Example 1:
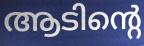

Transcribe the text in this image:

ആടിന്റെ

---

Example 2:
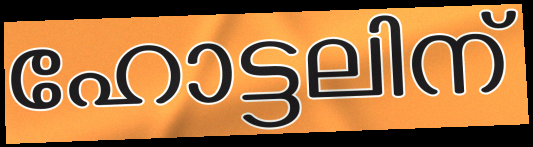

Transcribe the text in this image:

ഹോട്ടലിന്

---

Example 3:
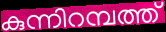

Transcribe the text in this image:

കുന്നിറമ്പത്ത്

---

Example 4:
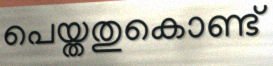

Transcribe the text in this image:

പെയ്തതുകൊണ്ട്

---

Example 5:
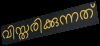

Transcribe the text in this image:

വിസ്തരിക്കുന്നത്